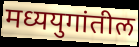
मध्ययुगांतील